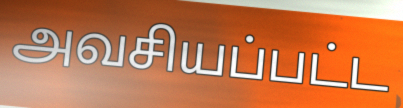
அவசியப்பட்ட